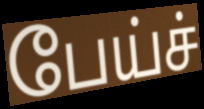
பேய்ச்